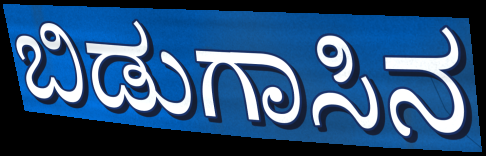
ಬಿಡುಗಾಸಿನ